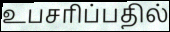
உபசரிப்பதில்